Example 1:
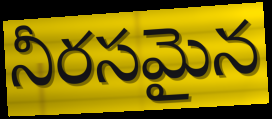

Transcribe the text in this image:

నీరసమైన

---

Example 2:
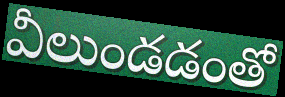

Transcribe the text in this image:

వీలుండడంతో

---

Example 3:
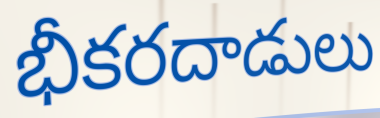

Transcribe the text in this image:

భీకరదాడులు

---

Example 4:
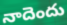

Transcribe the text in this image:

నాదెందు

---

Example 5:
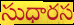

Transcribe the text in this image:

సుధారస